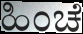
ಹಿಂಚೆ